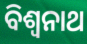
ବିଶ୍ୱନାଥ